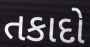
તકાદો